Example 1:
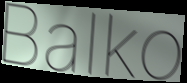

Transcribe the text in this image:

Balko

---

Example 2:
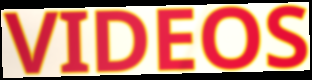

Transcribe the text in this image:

VIDEOS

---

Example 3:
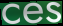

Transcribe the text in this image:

ces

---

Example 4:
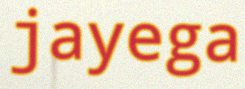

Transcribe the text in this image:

jayega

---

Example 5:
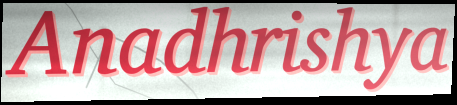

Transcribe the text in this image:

Anadhrishya